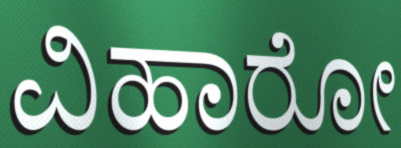
ವಿಹಾರೋ